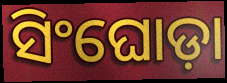
ସିଂଘୋଡ଼ା